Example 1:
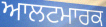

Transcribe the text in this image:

ਆਲਟਮਾਰਕ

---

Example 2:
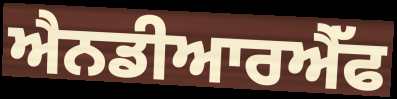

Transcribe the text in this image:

ਐਨਡੀਆਰਐੱਫ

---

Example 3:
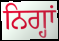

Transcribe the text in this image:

ਨਿਗ੍ਹਾਂ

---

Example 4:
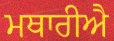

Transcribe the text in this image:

ਮਥਾਰੀਐ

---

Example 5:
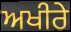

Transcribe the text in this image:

ਅਖੀਰੇ